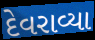
દેવરાવ્યા